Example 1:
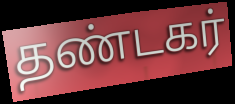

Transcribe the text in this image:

தண்டகர்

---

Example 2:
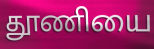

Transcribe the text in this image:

தூணியை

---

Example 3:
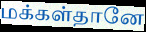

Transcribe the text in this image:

மக்கள்தானே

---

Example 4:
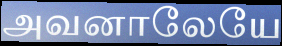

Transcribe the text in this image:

அவனாலேயே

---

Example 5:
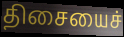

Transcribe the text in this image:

திசையைச்